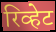
रिव्हेट